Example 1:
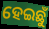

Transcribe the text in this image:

ହେଇଛୁଁ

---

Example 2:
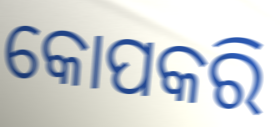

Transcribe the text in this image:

କୋପକରି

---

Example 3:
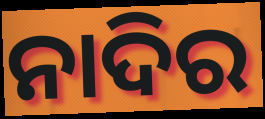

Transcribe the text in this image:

ନାଦିର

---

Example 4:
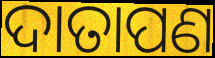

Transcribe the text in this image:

ଦାତାପଣ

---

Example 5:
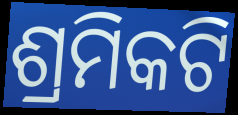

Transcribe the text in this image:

ଶ୍ରମିକଟି